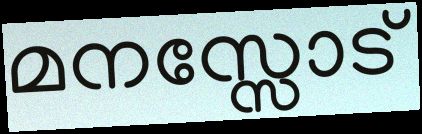
മനസ്സോട്